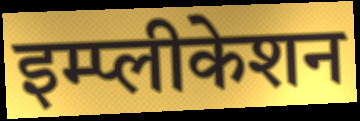
इम्प्लीकेशन